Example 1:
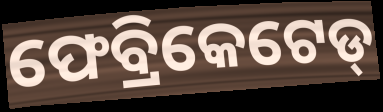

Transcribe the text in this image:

ଫେବ୍ରିକେଟେଡ୍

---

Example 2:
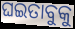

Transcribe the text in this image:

ଘଇତାବୁକୁ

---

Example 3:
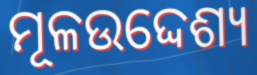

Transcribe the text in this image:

ମୂଳଉଦ୍ଦେଶ୍ୟ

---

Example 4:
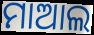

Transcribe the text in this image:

ମାଆଲ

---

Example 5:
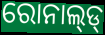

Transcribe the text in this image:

ରୋନାଲ୍‌ଡ୍